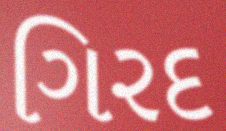
ગિરદ